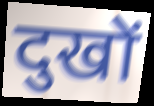
दुखों